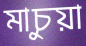
মাচুয়া